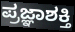
ಪ್ರಜ್ಞಾಶಕ್ತಿ